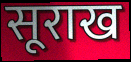
सूराख